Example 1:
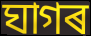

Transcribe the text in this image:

ঘাগৰ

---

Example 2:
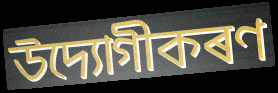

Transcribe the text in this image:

উদ্যোগীকৰণ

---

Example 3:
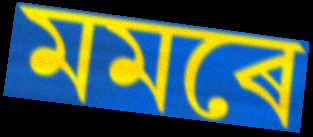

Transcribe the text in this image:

মমৰে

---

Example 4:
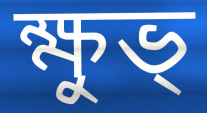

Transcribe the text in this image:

ক্ষুভ্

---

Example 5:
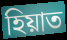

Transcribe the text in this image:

হিয়াত